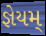
જ્ઞેયમ્